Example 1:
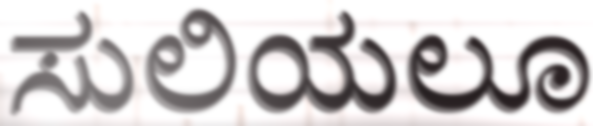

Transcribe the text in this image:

ಸುಲಿಯಲೂ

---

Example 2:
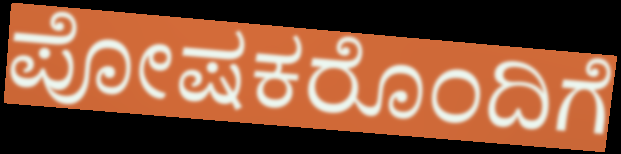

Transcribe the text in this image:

ಪೋಷಕರೊಂದಿಗೆ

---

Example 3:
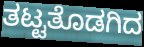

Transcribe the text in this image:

ತಟ್ಟತೊಡಗಿದ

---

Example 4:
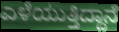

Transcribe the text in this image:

ಎಳೆಯುತ್ತಿದ್ದಾನೆ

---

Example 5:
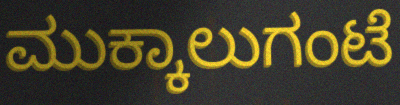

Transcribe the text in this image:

ಮುಕ್ಕಾಲುಗಂಟೆ